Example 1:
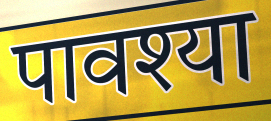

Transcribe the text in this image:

पावश्या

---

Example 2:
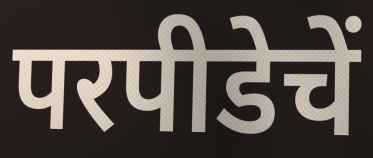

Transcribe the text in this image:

परपीडेचें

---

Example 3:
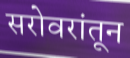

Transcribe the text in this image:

सरोवरांतून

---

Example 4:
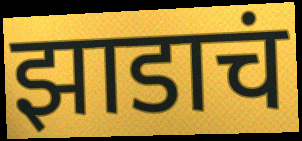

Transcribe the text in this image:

झाडाचं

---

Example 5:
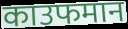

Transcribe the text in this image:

काउफमान